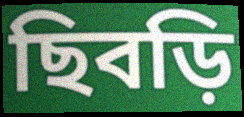
ছিবড়ি